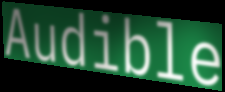
Audible